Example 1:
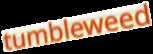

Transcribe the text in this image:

tumbleweed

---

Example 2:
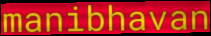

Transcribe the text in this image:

manibhavan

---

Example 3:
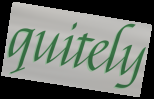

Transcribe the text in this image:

quitely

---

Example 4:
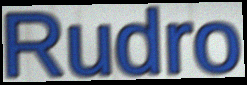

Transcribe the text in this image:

Rudro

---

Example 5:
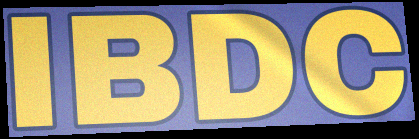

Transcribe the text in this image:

IBDC